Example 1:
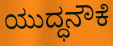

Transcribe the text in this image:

ಯುದ್ಧನೌಕೆ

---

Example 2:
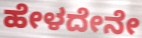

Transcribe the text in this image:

ಹೇಳದೇನೇ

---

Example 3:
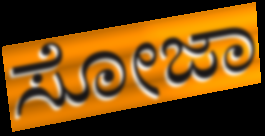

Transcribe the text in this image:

ಸೋಜಾ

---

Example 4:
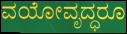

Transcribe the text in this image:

ವಯೋವೃದ್ಧರೂ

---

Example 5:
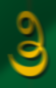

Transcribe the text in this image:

ತಿ